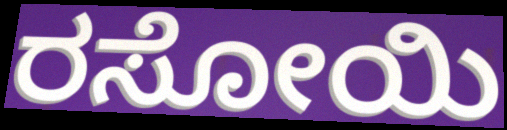
ರಸೋಯಿ